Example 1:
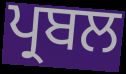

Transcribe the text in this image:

ਪ੍ਰਬਲ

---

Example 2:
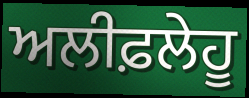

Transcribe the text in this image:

ਅਲੀਫ਼ਲੇਹੂ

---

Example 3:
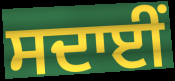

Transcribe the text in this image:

ਸਦਾਈਂ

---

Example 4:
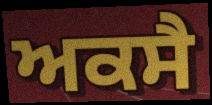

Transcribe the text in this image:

ਅਕਸੈ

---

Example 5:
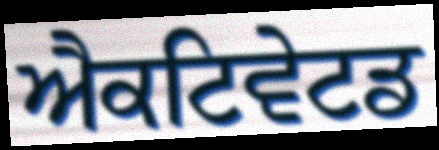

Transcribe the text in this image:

ਐਕਟਿਵੇਟਡ